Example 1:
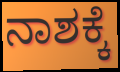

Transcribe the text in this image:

ನಾಶಕ್ಕೆ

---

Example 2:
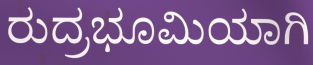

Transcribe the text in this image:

ರುದ್ರಭೂಮಿಯಾಗಿ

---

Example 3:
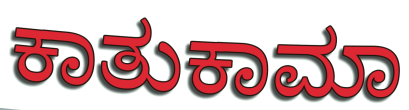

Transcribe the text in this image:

ಕಾತುಕಾಮಾ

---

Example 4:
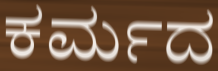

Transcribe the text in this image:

ಕರ್ಮದ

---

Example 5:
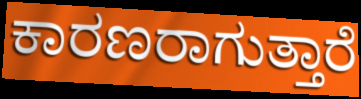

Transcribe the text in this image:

ಕಾರಣರಾಗುತ್ತಾರೆ